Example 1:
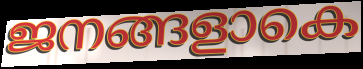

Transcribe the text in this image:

ജനങ്ങളാകെ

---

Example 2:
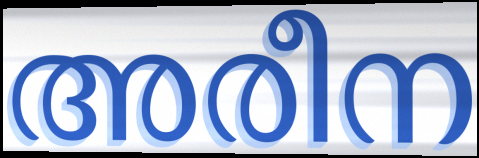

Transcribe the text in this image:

അരീന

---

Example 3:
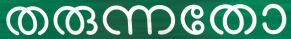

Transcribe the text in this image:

തരുന്നതോ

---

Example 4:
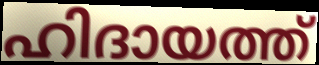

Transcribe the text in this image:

ഹിദായത്ത്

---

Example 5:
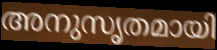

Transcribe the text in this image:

അനുസൃതമായി